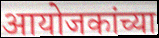
आयोजकांच्या